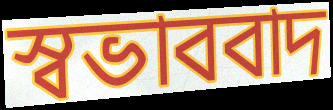
স্বভাববাদ